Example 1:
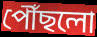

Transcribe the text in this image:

পৌঁছলো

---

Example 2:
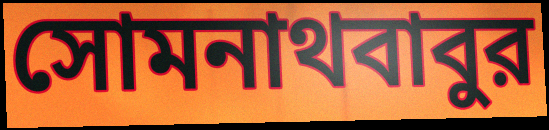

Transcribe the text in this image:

সোমনাথবাবুর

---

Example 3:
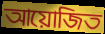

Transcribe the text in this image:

আয়োজিত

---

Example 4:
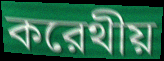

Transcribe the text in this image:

করেথীয়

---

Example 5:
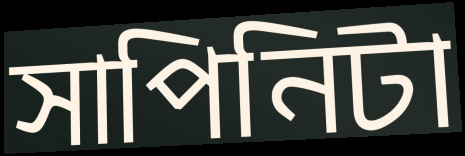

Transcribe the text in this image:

সাপিনিটা